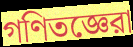
গণিতজ্ঞেরা